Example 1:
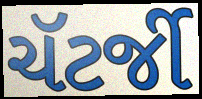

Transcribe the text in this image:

ચૅટર્જી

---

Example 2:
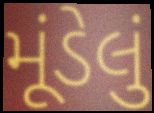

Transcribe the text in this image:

મૂંડેલું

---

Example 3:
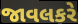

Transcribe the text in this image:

જાવલકરે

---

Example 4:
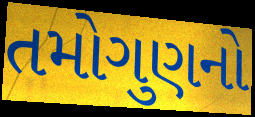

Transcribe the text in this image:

તમોગુણનો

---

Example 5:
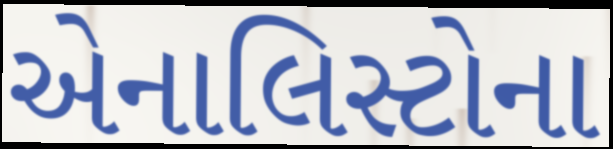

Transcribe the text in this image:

એનાલિસ્ટોના